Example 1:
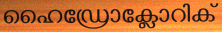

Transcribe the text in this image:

ഹൈഡ്രോക്ലോറിക്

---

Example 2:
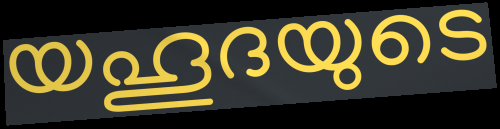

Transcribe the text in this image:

യഹൂദയുടെ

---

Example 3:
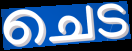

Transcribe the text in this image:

ചെട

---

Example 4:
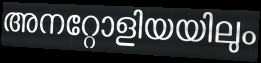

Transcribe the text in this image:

അനറ്റോളിയയിലും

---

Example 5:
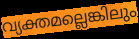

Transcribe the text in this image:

വ്യക്തമല്ലെങ്കിലും